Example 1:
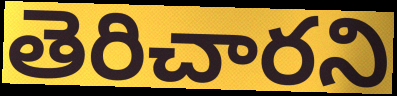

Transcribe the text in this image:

తెరిచారని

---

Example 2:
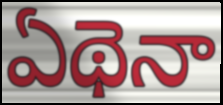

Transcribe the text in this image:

ఏథెనా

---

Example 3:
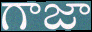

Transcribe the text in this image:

గాజా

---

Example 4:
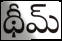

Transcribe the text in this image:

థీమ్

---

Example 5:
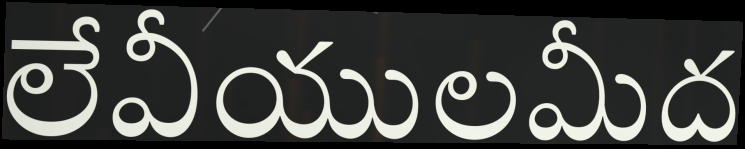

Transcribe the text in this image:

లేవీయులమీద